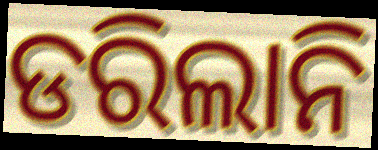
ଡରିଲାନି